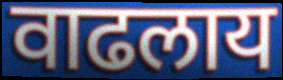
वाढलाय